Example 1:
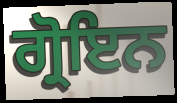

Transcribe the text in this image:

ਗ੍ਰੋਇਨ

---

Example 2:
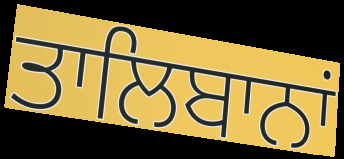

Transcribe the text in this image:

ਤਾਲਿਬਾਨਾਂ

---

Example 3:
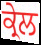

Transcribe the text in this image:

ਕ੍ਰੇਲ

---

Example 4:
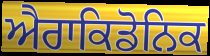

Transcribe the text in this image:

ਐਰਾਕਿਡੋਨਿਕ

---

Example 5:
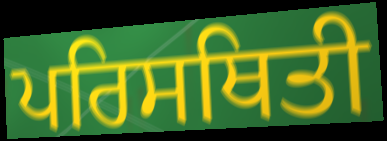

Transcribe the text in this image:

ਪਰਿਸਥਿਤੀ